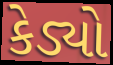
કેડ્યો